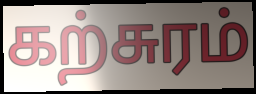
கற்சுரம்